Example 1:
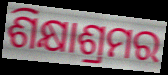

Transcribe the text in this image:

ଶିକ୍ଷାଶ୍ରମର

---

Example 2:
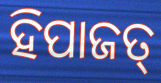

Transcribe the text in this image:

ହିପାଜତ୍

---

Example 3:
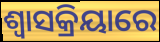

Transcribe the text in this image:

ଶ୍ୱାସକ୍ରିୟାରେ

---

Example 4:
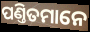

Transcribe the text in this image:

ପଣ୍ତିତମାନେ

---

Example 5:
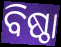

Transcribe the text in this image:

ବିଷ୍ଠା